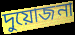
দুয়োজনা